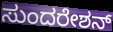
ಸುಂದರೇಶನ್